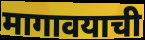
मागावयाची